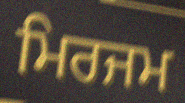
ਮਿਰਜਮ